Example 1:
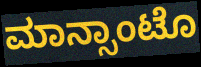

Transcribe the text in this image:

ಮಾನ್ಸಾಂಟೊ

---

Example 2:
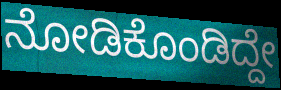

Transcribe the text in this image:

ನೋಡಿಕೊಂಡಿದ್ದೇ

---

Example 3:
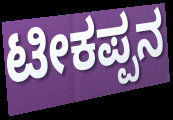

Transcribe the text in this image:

ಟೀಕಪ್ಪನ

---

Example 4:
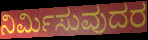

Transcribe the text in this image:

ನಿರ್ಮಿಸುವುದರ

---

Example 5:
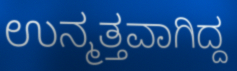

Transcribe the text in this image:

ಉನ್ಮತ್ತವಾಗಿದ್ದ